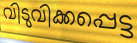
വിടുവിക്കപ്പെട്ട